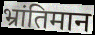
भ्रांतिमान